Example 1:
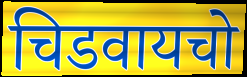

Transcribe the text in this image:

चिडवायचो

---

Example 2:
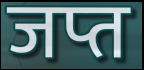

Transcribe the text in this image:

जप्त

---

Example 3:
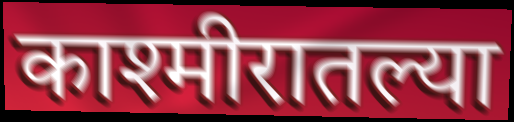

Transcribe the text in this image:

काश्मीरातल्या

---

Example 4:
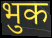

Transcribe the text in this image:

भुक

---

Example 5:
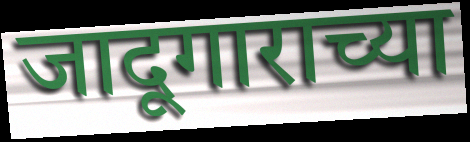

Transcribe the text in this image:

जादूगाराच्या